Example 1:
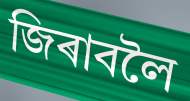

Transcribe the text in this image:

জিৰাবলৈ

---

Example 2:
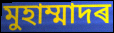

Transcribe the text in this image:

মুহাম্মাদৰ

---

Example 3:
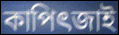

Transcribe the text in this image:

কাপিৎজাই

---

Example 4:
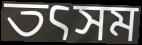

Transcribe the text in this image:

তৎসম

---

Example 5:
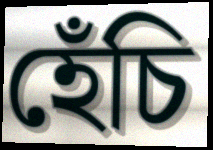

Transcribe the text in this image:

হেঁচি